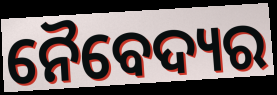
ନୈବେଦ୍ୟର